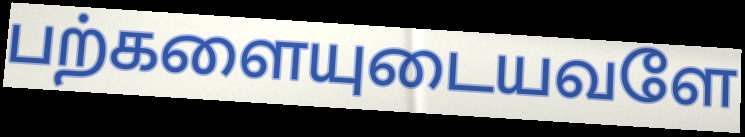
பற்களையுடையவளே